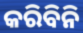
କରିବିନି